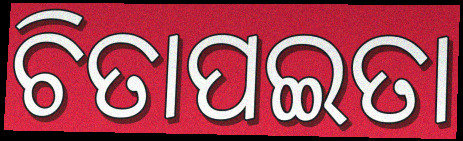
ଚିତାପଇତା